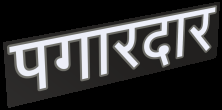
पगारदार